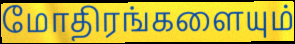
மோதிரங்களையும்